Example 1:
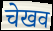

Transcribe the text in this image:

चेखव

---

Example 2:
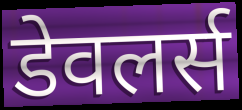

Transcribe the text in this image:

डेवलर्स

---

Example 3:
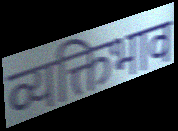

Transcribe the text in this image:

व्यक्तिभाव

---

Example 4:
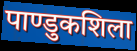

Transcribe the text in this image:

पाण्डुकशिला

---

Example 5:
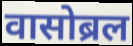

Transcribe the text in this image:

वासोब्रल